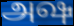
அஷ